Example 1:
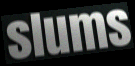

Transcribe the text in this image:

slums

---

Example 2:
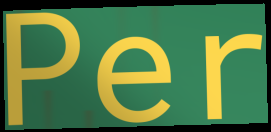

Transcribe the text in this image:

Per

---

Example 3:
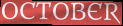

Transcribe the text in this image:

OCTOBER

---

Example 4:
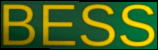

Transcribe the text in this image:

BESS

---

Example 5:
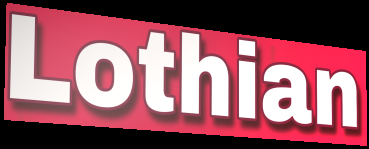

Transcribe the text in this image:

Lothian